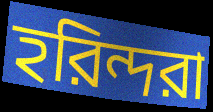
হরিন্দরা